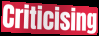
Criticising